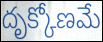
దృక్కోణమే